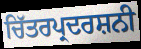
ਚਿੱਤਰਪ੍ਰਦਰਸ਼ਨੀ